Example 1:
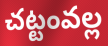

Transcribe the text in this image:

చట్టంవల్ల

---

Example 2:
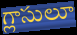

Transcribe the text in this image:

గ్లాసులూ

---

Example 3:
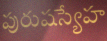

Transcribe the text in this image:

పురుషస్యేహ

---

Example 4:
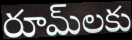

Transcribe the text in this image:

రూమ్‌లకు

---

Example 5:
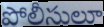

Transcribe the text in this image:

పోలీసులూ